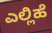
ಎಲ್ಲಿಹೆ